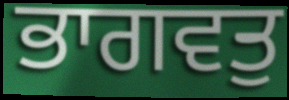
ਭਾਗਵਤੁ